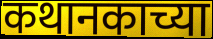
कथानकाच्या